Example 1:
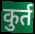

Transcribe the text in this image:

कुर्त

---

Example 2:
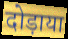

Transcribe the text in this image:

दोड़ाया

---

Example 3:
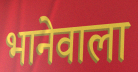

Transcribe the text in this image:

भानेवाला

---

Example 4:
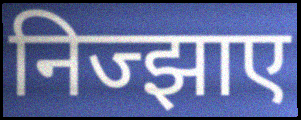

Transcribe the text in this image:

निज्झाए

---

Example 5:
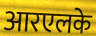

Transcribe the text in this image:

आरएलके